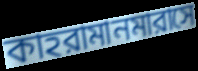
কাহরামানমারাসে